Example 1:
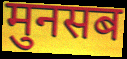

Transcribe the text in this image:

मुनसब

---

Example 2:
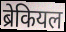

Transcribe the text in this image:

ब्रेकियल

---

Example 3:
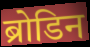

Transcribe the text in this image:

ब्रोडिन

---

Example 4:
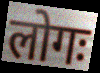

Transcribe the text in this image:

लोगः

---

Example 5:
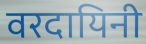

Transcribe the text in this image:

वरदायिनी